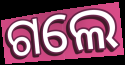
ଗଲେ